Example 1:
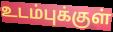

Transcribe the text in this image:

உடம்புக்குள்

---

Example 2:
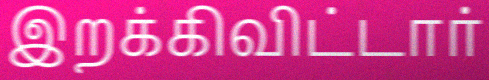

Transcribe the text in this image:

இறக்கிவிட்டார்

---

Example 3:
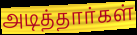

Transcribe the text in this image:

அடித்தார்கள்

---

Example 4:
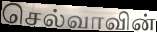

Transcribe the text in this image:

செல்வாவின்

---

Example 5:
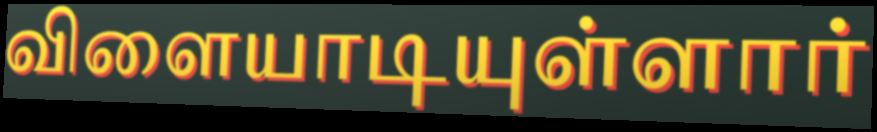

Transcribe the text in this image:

விளையாடியுள்ளார்